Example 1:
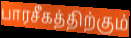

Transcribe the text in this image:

பாரசீகத்திற்கும்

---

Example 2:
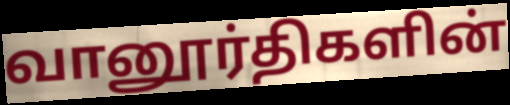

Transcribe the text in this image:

வானூர்திகளின்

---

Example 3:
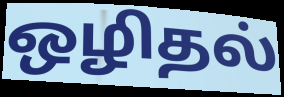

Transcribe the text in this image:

ஒழிதல்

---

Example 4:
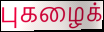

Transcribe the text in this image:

புகழைக்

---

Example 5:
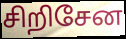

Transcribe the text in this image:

சிறிசேன